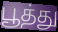
பூத்து